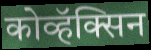
कोव्हॅक्सिन